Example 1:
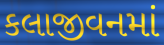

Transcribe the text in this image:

કલાજીવનમાં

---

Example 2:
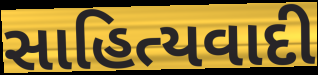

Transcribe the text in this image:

સાહિત્યવાદી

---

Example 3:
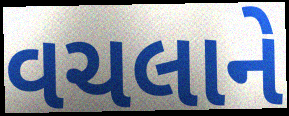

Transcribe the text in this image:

વચલાને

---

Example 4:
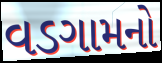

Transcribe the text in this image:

વડગામનો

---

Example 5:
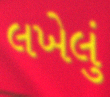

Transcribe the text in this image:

લખેલું